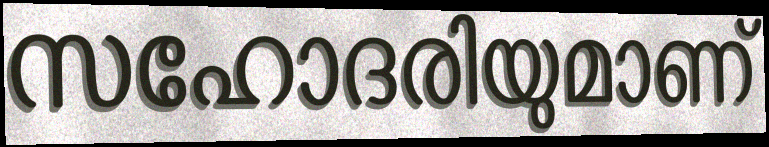
സഹോദരിയുമാണ്